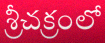
శ్రీచక్రంలో